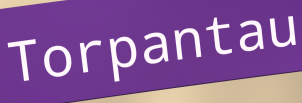
Torpantau